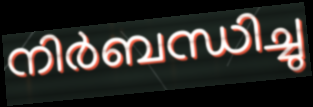
നിർബന്ധിച്ചു